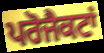
ਪਰੋਜੈਕਟਾਂ